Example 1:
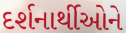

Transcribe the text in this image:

દર્શનાર્થીઓને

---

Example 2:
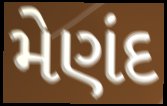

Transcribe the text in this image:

મેણંદ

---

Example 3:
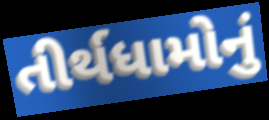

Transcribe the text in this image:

તીર્થધામોનું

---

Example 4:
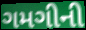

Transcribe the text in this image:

ગમગીની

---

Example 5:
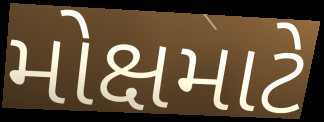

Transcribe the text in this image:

મોક્ષમાટે